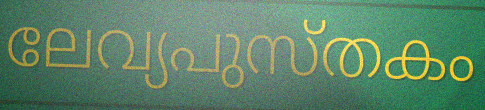
ലേവ്യപുസ്തകം